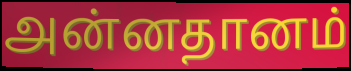
அன்னதானம்